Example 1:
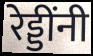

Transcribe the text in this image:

रेड्डींनी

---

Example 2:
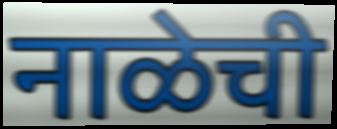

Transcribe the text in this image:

नाळेची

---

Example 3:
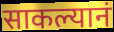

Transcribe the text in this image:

साकल्यानं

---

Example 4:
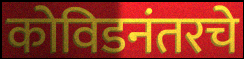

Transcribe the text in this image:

कोविडनंतरचे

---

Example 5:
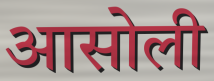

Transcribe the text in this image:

आसोली